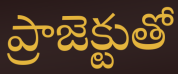
ప్రాజెక్టుతో